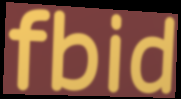
fbid